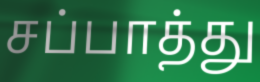
சப்பாத்து